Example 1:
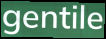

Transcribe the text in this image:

gentile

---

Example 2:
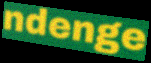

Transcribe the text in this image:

ndenge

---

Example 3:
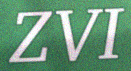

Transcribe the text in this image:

ZVI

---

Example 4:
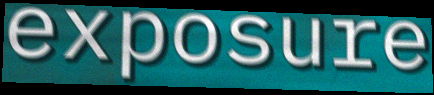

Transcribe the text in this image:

exposure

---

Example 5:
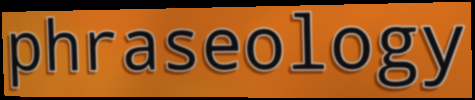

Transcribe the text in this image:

phraseology